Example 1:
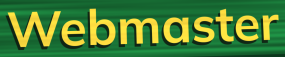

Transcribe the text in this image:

Webmaster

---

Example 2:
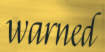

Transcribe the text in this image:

warned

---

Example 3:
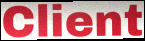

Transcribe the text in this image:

Client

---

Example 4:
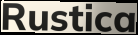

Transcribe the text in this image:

Rustica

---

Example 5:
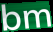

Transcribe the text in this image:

bm